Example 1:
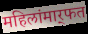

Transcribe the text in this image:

महिलांमार्फत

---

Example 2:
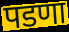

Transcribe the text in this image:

पडणा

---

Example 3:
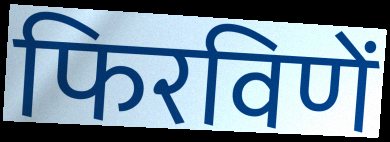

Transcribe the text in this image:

फिरविणें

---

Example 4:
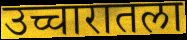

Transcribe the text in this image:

उच्चारातला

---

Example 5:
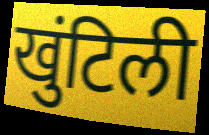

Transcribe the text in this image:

खुंटिली